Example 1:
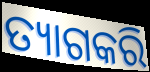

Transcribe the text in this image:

ତ୍ଯାଗକରି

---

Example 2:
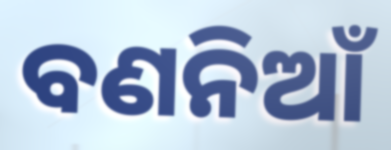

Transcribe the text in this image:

ବଣନିଆଁ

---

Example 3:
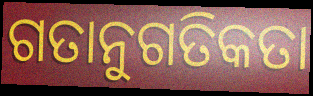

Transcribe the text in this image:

ଗତାନୁଗତିକତା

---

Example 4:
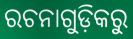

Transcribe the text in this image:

ରଚନାଗୁଡ଼ିକରୁ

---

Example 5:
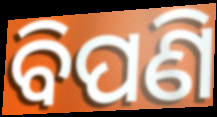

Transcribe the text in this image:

ବିପଣି